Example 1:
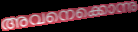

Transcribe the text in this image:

അവനെക്കൊന്നു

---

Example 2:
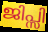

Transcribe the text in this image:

ജിപ്സി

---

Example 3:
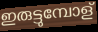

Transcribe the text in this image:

ഇരുട്ടുമ്പോള്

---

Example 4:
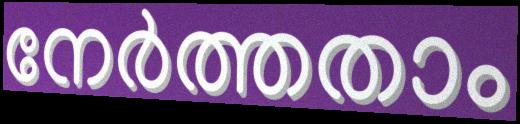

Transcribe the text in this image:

നേർത്തതാം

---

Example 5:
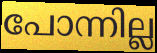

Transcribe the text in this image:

പോന്നില്ല